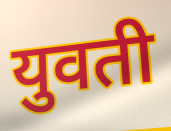
युवती